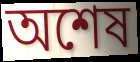
অশেষ